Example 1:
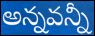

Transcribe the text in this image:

అన్నవన్నీ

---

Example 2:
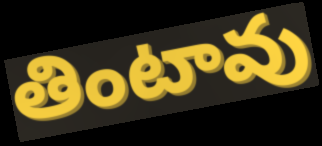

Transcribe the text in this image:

తింటావు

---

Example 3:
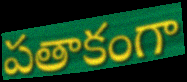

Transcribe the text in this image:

పతాకంగా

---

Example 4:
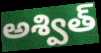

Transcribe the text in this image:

అశ్విత్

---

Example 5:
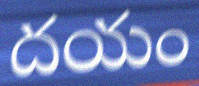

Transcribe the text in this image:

దయం